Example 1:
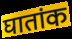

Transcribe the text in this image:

घातांक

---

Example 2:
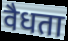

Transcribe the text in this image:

वैधता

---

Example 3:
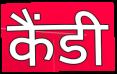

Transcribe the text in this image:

कैंडी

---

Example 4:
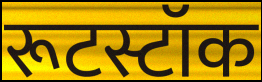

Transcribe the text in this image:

रूटस्टॉक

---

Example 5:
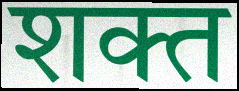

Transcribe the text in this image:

शक्त